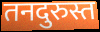
तनदुरुस्त